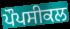
ਪੌਪਸੀਕਲ